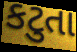
કટુતા